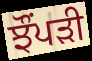
ਝੌਂਪੜੀ